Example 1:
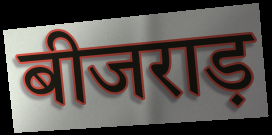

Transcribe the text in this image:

बीजराड़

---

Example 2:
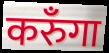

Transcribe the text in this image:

करुँगा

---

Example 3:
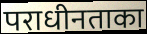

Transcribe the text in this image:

पराधीनताका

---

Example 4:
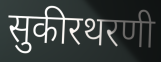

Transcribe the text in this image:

सुकीरथरणी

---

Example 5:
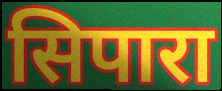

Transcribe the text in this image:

सिपारा